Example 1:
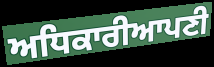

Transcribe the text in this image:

ਅਧਿਕਾਰੀਆਪਣੀ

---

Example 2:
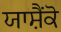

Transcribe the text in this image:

ਯਾਸ਼ੈਂਕੋ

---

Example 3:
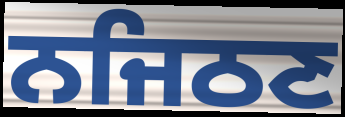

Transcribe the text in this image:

ਨਜਿਠਣ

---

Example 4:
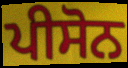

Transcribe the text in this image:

ਪੀਸੋਨ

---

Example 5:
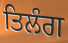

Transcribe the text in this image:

ਤਿਲੰਗ